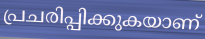
പ്രചരിപ്പിക്കുകയാണ്